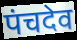
पंचदेव